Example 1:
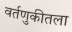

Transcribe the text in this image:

वर्तणुकीतला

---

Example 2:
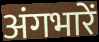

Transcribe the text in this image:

अंगभारें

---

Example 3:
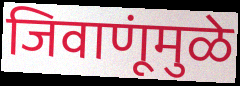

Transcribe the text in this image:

जिवाणूंमुळे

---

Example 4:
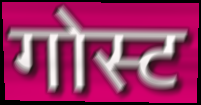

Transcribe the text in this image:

गोस्ट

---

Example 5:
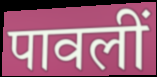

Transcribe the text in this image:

पावलीं